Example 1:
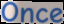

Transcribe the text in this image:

Once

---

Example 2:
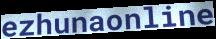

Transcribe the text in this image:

ezhunaonline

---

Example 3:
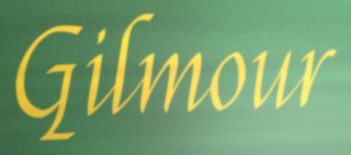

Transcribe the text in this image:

Gilmour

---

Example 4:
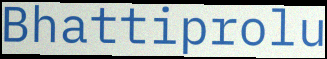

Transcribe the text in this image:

Bhattiprolu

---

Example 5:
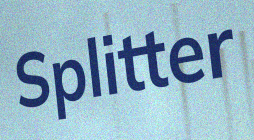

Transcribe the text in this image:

Splitter